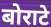
बोराटे